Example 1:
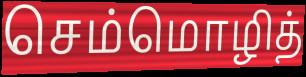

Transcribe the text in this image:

செம்மொழித்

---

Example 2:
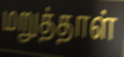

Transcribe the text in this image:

மறுத்தாள்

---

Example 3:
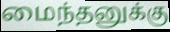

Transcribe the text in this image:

மைந்தனுக்கு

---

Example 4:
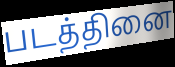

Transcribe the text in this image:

படத்தினை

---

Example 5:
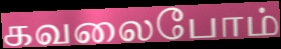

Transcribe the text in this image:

கவலைபோம்